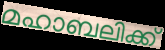
മഹാബലിക്ക്